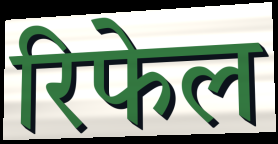
रिफेल